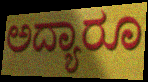
ಅದ್ಯಾರೂ